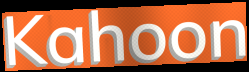
Kahoon